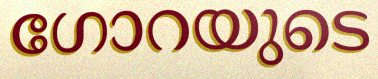
ഗോറയുടെ